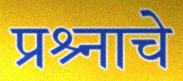
प्रश्र्नाचे